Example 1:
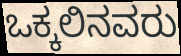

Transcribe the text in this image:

ಒಕ್ಕಲಿನವರು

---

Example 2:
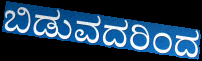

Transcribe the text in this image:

ಬಿಡುವದರಿಂದ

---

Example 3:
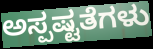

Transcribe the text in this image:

ಅಸ್ಪಷ್ಟತೆಗಳು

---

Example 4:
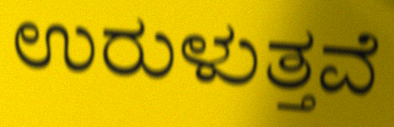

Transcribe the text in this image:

ಉರುಳುತ್ತವೆ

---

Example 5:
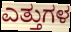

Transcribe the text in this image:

ಎತ್ತುಗಳ